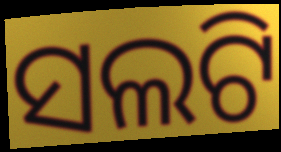
ସଲଟି